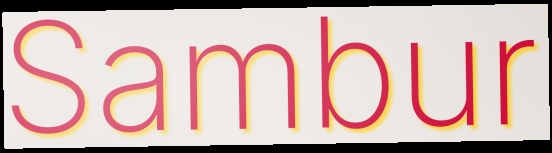
Sambur